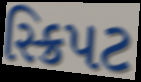
સ્ક્રિપટ